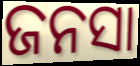
ଜନସା